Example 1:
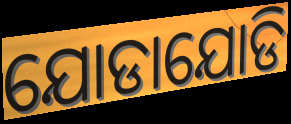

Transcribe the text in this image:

ଯୋଡାଯୋଡି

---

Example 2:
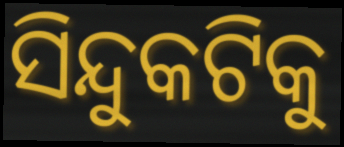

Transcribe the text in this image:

ସିନ୍ଦୁକଟିକୁ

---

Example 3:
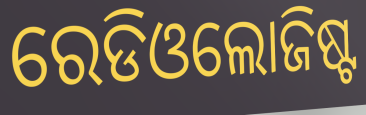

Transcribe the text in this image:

ରେଡିଓଲୋଜିଷ୍ଟ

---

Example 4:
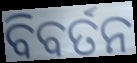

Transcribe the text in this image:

ବିବର୍ତନ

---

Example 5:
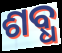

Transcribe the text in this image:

ଶବ୍ଧ